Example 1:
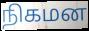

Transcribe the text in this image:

நிகமன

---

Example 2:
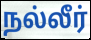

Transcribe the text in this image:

நல்லீர்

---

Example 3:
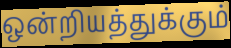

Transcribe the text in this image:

ஒன்றியத்துக்கும்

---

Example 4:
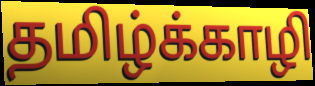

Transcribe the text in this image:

தமிழ்க்காழி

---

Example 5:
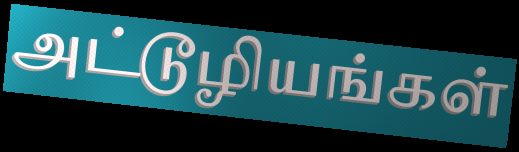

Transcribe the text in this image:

அட்டூழியங்கள்